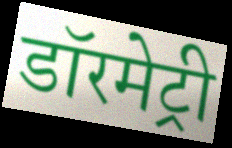
डॉरमेट्री